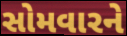
સોમવારને